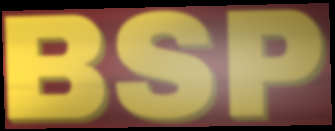
BSP